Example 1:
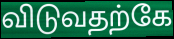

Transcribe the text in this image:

விடுவதற்கே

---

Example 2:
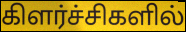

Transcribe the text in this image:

கிளர்ச்சிகளில்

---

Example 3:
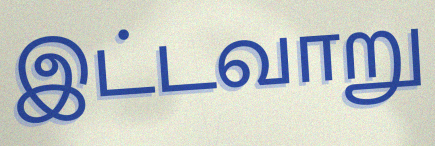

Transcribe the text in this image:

இட்டவாறு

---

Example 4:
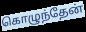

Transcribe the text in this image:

கொழுந்தேன்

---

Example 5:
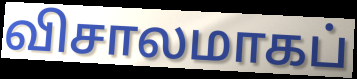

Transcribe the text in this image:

விசாலமாகப்